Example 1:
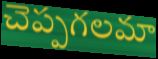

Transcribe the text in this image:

చెప్పగలమా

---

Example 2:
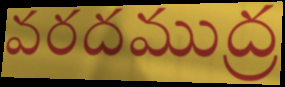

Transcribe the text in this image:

వరదముద్ర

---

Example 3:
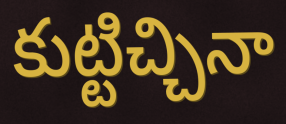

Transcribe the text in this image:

కుట్టిచ్చినా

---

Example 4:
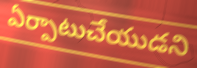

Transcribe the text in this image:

ఏర్పాటుచేయుడని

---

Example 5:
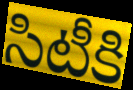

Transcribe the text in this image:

సిటీకి